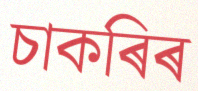
চাকৰিৰ